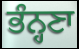
ਭੰਨ੍ਹਣਾ